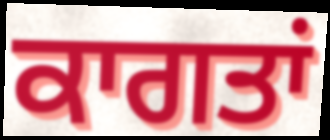
ਕਾਗਤਾਂ